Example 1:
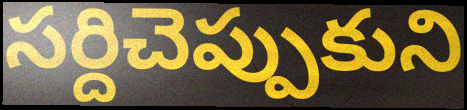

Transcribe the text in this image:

సర్దిచెప్పుకుని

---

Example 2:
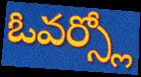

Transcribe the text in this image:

ఓవర్స్లో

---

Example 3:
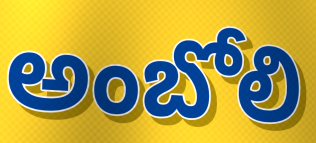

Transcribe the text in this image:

అంబోలి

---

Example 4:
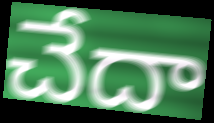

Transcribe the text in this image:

చేదా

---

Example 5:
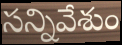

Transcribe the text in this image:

సన్నివేశుం